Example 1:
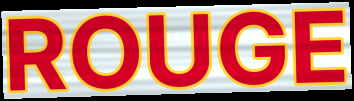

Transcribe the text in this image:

ROUGE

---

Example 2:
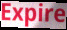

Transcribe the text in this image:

Expire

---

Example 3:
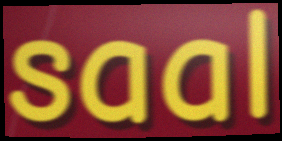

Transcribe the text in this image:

saal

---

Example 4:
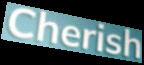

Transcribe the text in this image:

Cherish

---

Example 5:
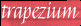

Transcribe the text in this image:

trapezium